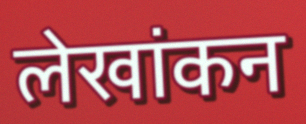
लेखांकन